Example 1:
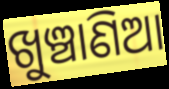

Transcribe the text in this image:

ଖୁଞ୍ଚାଣିଆ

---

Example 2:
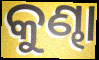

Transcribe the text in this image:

କୁଣ୍ଢା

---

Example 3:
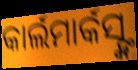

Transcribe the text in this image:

କାର୍ଲମାର୍କସ୍ଙ୍କ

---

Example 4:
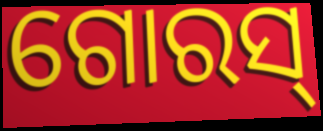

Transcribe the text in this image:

ଗୋରସ୍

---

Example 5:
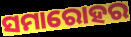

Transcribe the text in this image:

ସମାରୋହର